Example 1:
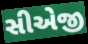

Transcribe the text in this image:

સીએજી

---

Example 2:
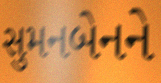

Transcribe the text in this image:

સુમનબેનને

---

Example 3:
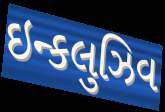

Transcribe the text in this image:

ઇન્કલુઝિવ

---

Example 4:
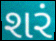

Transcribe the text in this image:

શરં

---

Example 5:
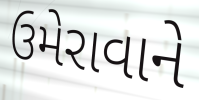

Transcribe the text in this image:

ઉમેરાવાને